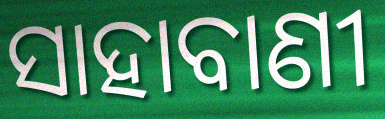
ସାହାବାଣୀ